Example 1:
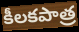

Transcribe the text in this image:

కీలకపాత్ర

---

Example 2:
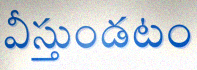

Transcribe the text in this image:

వీస్తుండటం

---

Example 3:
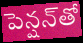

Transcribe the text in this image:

పెన్షన్‌తో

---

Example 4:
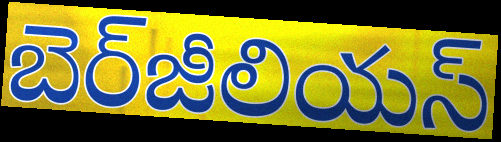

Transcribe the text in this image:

బెర్‌జీలియస్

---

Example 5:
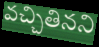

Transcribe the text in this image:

వచ్చితినని